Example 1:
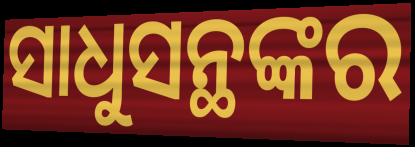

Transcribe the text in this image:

ସାଧୁସନ୍ଥଙ୍କର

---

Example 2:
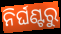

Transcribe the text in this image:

ନିର୍ଘଣ୍ଟରୁ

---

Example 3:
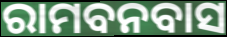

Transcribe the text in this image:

ରାମବନବାସ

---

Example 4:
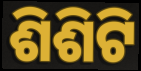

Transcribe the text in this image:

ଶିଶିଟି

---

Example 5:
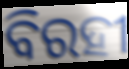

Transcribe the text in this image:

ବିରହୀ